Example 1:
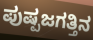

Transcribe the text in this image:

ಪುಷ್ಪಜಗತ್ತಿನ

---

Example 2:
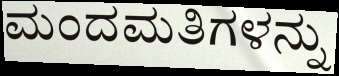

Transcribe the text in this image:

ಮಂದಮತಿಗಳನ್ನು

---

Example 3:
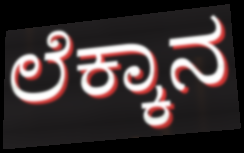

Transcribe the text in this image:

ಲೆಕ್ಕಾನ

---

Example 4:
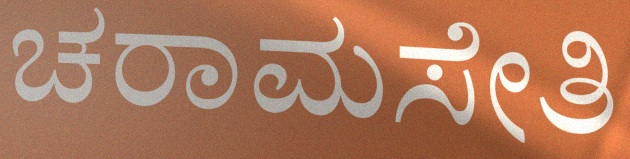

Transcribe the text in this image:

ಚರಾಮಸೇತಿ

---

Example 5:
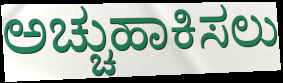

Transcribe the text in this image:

ಅಚ್ಚುಹಾಕಿಸಲು